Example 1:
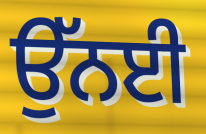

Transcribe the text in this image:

ਉੱਨਈ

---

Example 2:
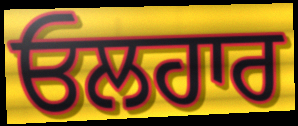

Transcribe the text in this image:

ਓਲਹਾਰ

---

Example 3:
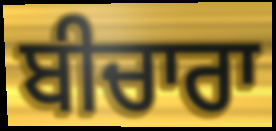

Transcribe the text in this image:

ਬੀਚਾਰਾ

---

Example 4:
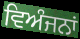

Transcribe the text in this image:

ਵਿਅੰਜਨਾਂ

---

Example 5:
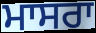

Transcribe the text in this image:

ਮਾਸਰਾ